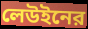
লেউইনের